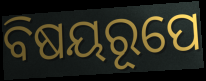
ବିଷୟରୂପେ